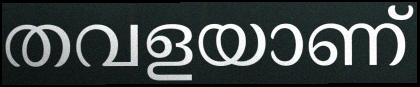
തവളയാണ്